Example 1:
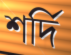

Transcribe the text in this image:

শর্দি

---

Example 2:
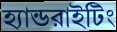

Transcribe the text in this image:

হ্যান্ডরাইটিং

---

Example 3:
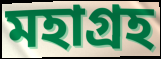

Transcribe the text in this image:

মহাগ্রহ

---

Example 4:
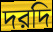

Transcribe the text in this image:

দরদি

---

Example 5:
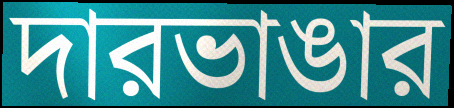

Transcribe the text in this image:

দারভাঙার